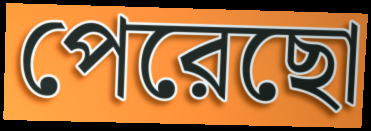
পেরেছো